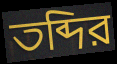
তব্দির